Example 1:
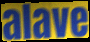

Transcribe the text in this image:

alave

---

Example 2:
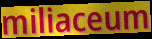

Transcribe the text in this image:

miliaceum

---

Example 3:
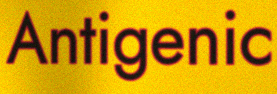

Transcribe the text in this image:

Antigenic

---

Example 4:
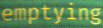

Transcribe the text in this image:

emptying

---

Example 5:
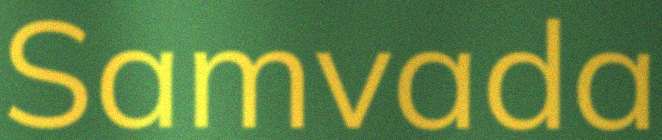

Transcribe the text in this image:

Samvada